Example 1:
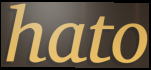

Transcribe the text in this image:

hato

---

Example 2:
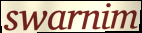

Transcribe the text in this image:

swarnim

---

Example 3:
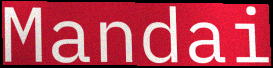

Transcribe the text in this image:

Mandai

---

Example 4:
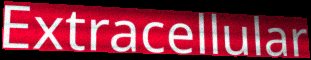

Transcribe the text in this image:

Extracellular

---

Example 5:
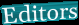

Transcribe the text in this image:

Editors